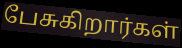
பேசுகிறார்கள்